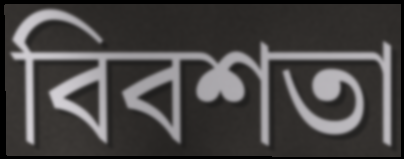
বিবশতা